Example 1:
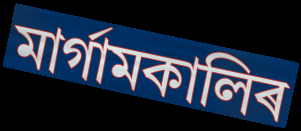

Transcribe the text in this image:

মাৰ্গামকালিৰ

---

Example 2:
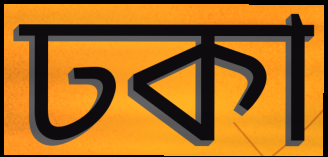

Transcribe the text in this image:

ঢকা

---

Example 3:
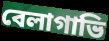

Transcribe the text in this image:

বেলাগাভি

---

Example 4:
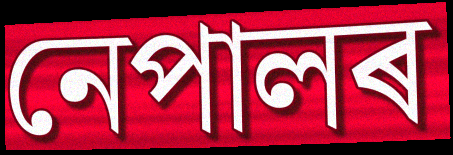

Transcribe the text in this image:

নেপালৰ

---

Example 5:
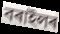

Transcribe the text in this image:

বৰাইলৰ